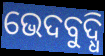
ଭେଦବୁଦ୍ଧି